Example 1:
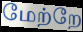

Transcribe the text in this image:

மேற்றே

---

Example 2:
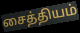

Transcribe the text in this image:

சைத்தியம்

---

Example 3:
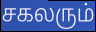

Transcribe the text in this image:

சகலரும்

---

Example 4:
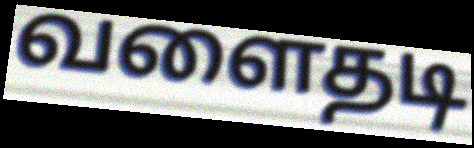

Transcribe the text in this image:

வளைதடி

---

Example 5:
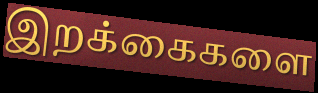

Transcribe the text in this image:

இறக்கைகளை